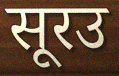
सूरउ